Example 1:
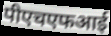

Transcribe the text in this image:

पीएचएफआई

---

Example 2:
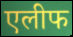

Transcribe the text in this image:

एलीफ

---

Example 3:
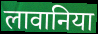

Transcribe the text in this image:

लावानिया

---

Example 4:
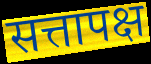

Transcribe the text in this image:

सत्तापक्ष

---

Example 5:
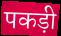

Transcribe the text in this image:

पकड़ी